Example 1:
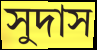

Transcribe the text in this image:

সুদাস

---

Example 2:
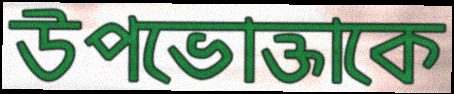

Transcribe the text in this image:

উপভোক্তাকে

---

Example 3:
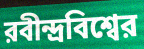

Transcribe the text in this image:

রবীন্দ্রবিশ্বের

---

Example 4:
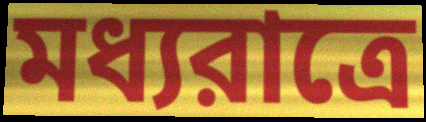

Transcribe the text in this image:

মধ্যরাত্রে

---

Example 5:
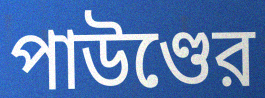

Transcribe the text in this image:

পাউণ্ডের